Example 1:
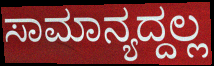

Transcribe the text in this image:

ಸಾಮಾನ್ಯದ್ದಲ್ಲ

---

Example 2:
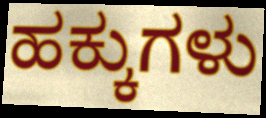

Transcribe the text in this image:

ಹಕ್ಕುಗಳು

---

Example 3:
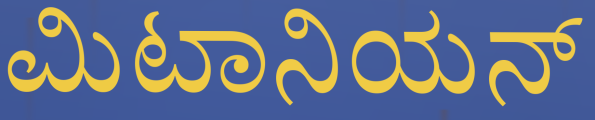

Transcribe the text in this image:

ಮಿಟಾನಿಯನ್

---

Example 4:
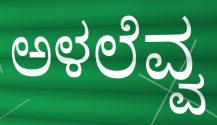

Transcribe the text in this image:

ಅಳಲೆವ್ವ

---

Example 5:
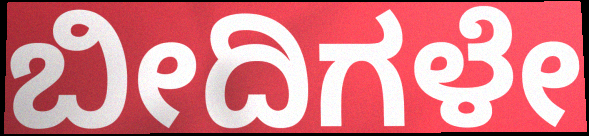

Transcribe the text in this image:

ಬೀದಿಗಳೇ